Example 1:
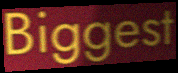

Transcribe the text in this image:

Biggest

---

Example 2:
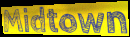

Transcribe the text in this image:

Midtown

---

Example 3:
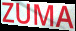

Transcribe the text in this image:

ZUMA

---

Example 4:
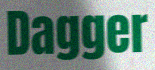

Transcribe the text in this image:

Dagger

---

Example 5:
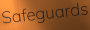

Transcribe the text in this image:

Safeguards